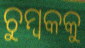
ଚୁମ୍ୱକକୁ